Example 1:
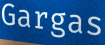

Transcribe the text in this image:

Gargas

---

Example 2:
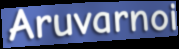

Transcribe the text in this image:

Aruvarnoi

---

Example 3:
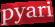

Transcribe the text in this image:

pyari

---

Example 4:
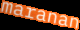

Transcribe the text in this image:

maranan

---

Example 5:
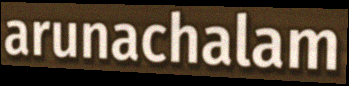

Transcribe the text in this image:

arunachalam